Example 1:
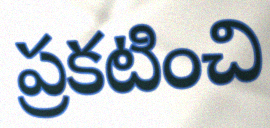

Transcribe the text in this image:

ప్రకటించి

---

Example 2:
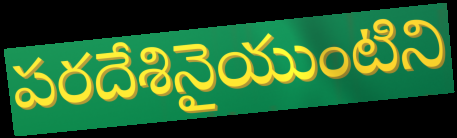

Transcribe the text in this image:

పరదేశినైయుంటిని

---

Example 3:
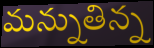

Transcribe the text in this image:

మన్నుతిన్న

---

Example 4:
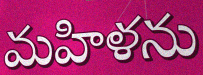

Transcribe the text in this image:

మహిళను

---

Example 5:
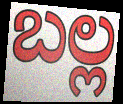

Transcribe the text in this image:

బల్ల